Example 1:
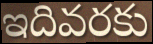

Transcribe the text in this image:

ఇదివరకు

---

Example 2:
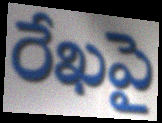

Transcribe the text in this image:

రేఖపై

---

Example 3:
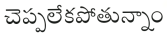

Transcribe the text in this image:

చెప్పలేకపోతున్నాం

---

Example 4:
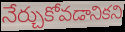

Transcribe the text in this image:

నేర్చుకోవడానికని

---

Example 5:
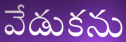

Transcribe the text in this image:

వేడుకను